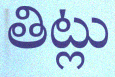
తిట్లు